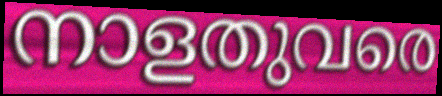
നാളതുവരെ